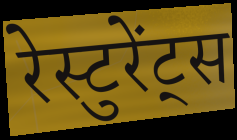
रेस्टुरेंट्स